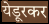
येडूरकर